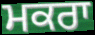
ਮਕਰਾ